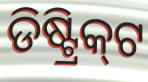
ଡିଷ୍ଟ୍ରିକ୍‌ଟ